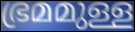
ഭ്രമമുള്ള